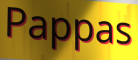
Pappas